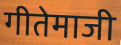
गीतेमाजी